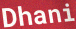
Dhani